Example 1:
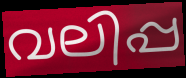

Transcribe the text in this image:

വലിപ്പ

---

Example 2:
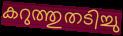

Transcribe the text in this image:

കറുത്തുതടിച്ചു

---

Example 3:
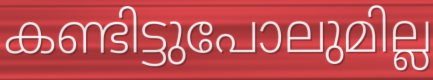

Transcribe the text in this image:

കണ്ടിട്ടുപോലുമില്ല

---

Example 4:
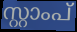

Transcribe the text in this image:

സ്റ്റാംപ്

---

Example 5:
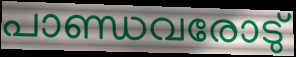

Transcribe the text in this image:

പാണ്ഡവരോടു്